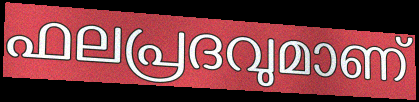
ഫലപ്രദവുമാണ്